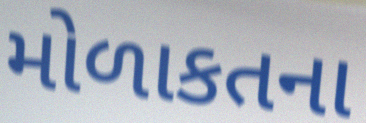
મોળાકતના